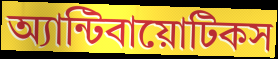
অ্যান্টিবায়োটিকস